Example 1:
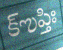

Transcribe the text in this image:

క్ఌప్తిః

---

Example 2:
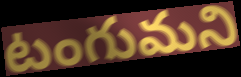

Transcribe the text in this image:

టంగుమని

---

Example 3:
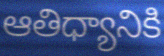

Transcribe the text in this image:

ఆతిధ్యానికి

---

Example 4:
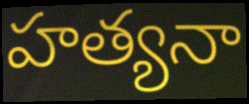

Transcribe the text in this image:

హత్యనా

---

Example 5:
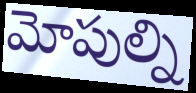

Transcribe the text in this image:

మోపుల్ని